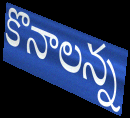
కొనాలన్న